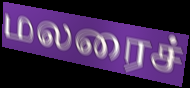
மலரைச்